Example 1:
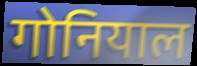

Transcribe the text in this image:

गोनियाल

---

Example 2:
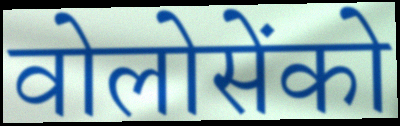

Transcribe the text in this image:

वोलोसेंको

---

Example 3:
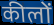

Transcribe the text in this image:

कीलों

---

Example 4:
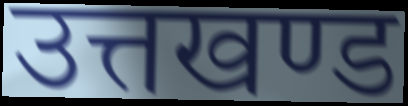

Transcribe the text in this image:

उत्तखण्ड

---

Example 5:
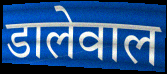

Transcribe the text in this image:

डालेवाल